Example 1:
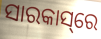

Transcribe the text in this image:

ସାରକାସ୍‌ରେ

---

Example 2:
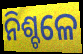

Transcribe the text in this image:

ନିଶ୍ଚଳେ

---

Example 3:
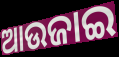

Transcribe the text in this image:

ଆଉଜାଇ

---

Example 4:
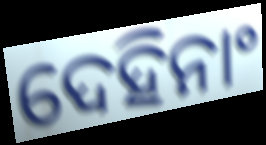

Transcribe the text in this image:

ଦେହିନାଂ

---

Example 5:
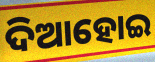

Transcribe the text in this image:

ଦିଆହୋଇ